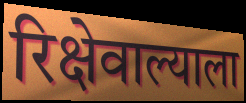
रिक्षेवाल्याला